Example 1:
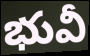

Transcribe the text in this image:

భువీ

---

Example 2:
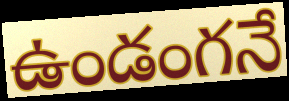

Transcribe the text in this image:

ఉండంగనే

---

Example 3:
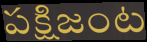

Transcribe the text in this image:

పక్షిజంట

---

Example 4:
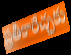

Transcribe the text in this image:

ప్రతీకారేచ్ఛకు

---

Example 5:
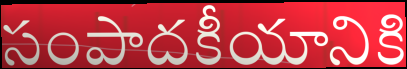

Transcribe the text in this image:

సంపాదకీయానికి